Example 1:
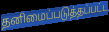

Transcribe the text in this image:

தனிமைப்படுத்தப்பட்ட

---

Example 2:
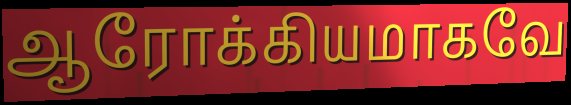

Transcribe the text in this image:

ஆரோக்கியமாகவே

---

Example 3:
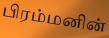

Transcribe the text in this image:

பிரம்மனின்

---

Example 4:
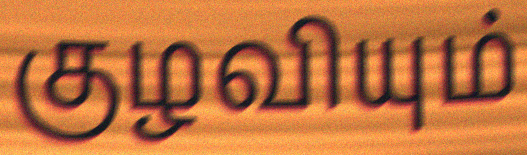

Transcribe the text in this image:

குழவியும்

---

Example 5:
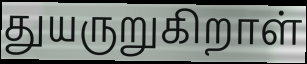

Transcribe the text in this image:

துயருறுகிறாள்